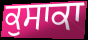
ਕੁਸਾਕਾ